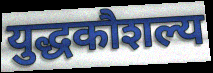
युद्धकौशल्य